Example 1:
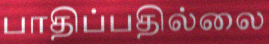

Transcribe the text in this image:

பாதிப்பதில்லை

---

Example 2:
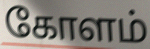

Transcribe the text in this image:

கோளம்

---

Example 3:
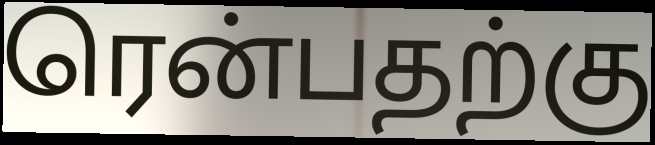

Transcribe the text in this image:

ரென்பதற்கு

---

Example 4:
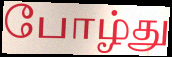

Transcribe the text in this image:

போழ்து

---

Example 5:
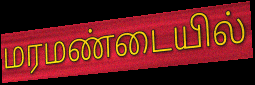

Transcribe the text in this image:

மரமண்டையில்